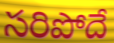
సరిపోదే